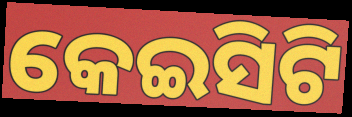
କେଇସିଟି